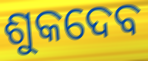
ଶୁକଦେବ